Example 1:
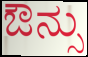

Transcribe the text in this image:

ಔನ್ಸು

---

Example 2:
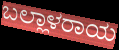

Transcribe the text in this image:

ಬಲ್ಲಾಳರಾಯ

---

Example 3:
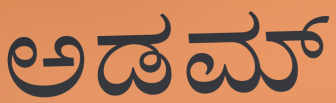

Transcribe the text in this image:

ಅಡಮ್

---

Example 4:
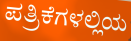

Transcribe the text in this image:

ಪತ್ರಿಕೆಗಳಲ್ಲಿಯ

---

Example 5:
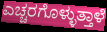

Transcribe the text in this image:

ಎಚ್ಚರಗೊಳ್ಳುತ್ತಾಳೆ